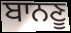
ਬਾਨਣੂ